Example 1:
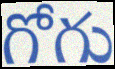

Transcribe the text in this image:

గోగు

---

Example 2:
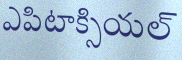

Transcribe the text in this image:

ఎపిటాక్సియల్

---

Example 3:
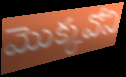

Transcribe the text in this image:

మొక్కవోని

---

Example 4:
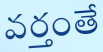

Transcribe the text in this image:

వర్తంతే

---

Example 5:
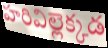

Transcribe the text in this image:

హరివిల్లెక్కడ